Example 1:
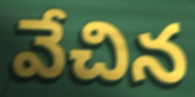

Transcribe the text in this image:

వేచిన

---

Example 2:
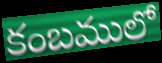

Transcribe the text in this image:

కంబములో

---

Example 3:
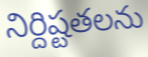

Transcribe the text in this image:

నిర్దిష్టతలను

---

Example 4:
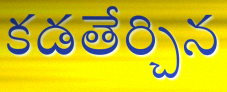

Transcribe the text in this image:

కడతేర్చిన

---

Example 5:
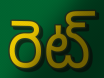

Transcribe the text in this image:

రెట్